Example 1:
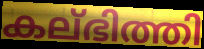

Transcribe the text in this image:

കല്ഭിത്തി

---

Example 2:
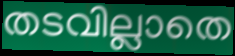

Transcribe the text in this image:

തടവില്ലാതെ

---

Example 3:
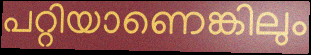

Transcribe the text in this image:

പറ്റിയാണെങ്കിലും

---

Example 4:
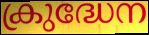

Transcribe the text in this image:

ക്രുദ്ധേന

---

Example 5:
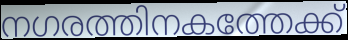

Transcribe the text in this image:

നഗരത്തിനകത്തേക്ക്